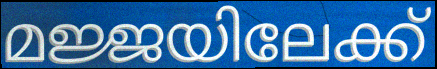
മജ്ജയിലേക്ക്